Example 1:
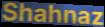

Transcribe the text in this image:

Shahnaz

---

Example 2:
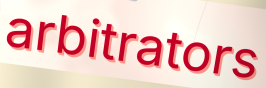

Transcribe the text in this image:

arbitrators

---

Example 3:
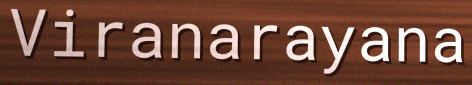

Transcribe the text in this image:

Viranarayana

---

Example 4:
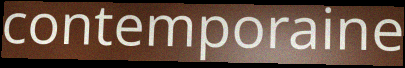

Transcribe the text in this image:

contemporaine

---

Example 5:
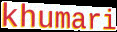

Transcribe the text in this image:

khumari